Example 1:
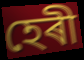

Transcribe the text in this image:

হেৰী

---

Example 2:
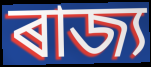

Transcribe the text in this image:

ৰাজ্য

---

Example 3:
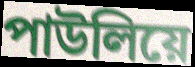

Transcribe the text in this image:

পাউলিয়ে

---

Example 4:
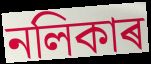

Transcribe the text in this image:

নলিকাৰ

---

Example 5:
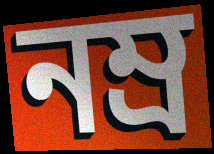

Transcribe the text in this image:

নম্ৰ